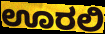
ಊರಲಿ